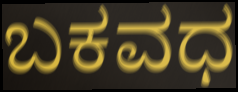
ಬಕವಧ